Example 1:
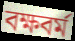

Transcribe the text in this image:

বক্ষবর্ম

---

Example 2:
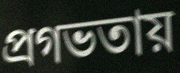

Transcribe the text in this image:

প্রগভতায়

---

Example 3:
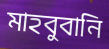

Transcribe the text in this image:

মাহবুবানি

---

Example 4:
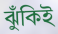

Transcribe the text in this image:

ঝুঁকিই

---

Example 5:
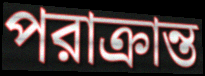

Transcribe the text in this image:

পরাক্রান্ত